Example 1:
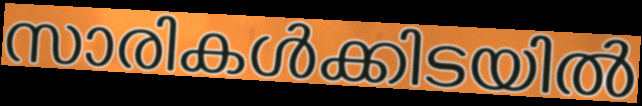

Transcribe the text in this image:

സാരികൾക്കിടയിൽ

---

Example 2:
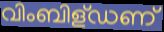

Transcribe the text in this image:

വിംബിള്ഡണ്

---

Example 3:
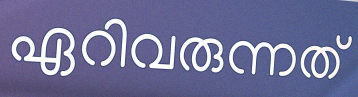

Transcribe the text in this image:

ഏറിവരുന്നത്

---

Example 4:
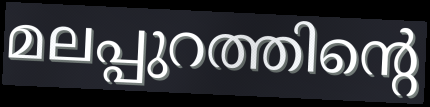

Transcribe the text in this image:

മലപ്പുറത്തിന്റെ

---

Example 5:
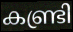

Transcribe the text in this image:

കണ്ട്രി